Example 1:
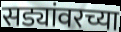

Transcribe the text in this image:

सड्यांवरच्या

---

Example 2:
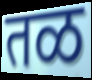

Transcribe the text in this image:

तळ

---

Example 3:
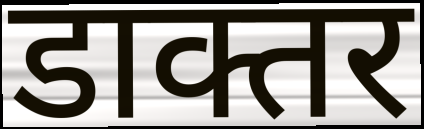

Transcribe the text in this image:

डाक्तर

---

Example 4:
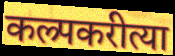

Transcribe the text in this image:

कल्पकरीत्या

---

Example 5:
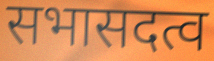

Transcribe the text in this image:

सभासदत्व